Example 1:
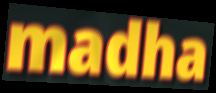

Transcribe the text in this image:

madha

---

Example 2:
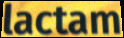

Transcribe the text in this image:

lactam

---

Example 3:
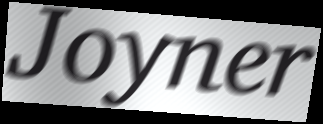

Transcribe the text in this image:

Joyner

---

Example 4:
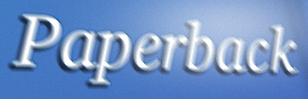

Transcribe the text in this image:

Paperback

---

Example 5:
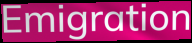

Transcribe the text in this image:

Emigration